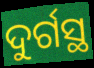
ଦୁର୍ଗସ୍ଥ